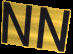
NN